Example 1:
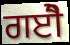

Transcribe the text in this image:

ਗਈੈ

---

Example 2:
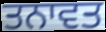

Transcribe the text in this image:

ਤਨਾਵਤ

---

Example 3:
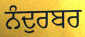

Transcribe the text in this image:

ਨੰਦੁਰਬਰ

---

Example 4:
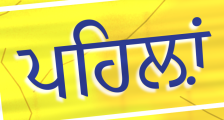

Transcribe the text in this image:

ਪਹਿਲ਼ਾਂ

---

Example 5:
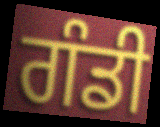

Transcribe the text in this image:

ਗੰਡੀ